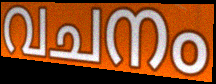
വചനം